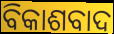
ବିକାଶବାଦ